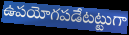
ఉపయోగపడేటట్టుగా